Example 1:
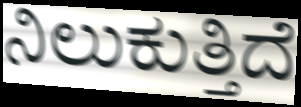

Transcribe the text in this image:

ನಿಲುಕುತ್ತಿದೆ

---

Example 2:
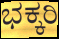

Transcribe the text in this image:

ಭಕ್ಕರಿ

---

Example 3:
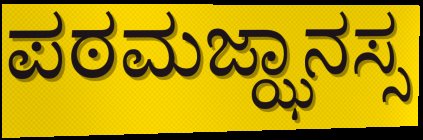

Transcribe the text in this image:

ಪಠಮಜ್ಝಾನಸ್ಸ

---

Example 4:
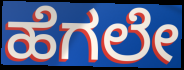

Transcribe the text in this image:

ಹೆಗಲೇ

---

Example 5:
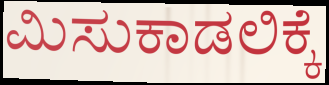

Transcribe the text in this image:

ಮಿಸುಕಾಡಲಿಕ್ಕೆ